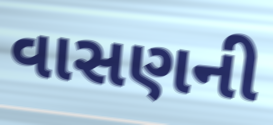
વાસણની